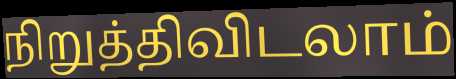
நிறுத்திவிடலாம்